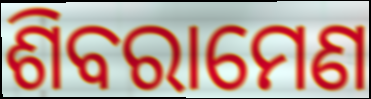
ଶିବରାମେଣ